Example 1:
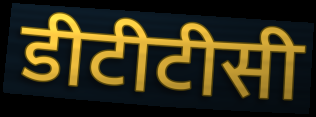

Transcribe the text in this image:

डीटीटीसी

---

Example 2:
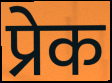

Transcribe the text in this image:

प्रेक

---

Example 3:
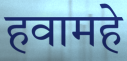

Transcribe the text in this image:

हवामहे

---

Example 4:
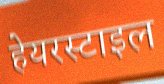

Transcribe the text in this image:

हेयरस्टाइल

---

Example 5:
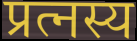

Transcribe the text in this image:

प्रत्नस्य